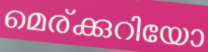
മെര്ക്കുറിയോ